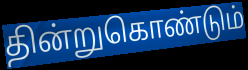
தின்றுகொண்டும்